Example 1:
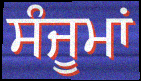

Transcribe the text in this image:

ਸੰਜੂਮਾਂ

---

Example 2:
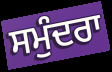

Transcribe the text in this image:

ਸਮੁੰਦਰਾ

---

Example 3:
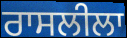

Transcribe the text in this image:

ਰਾਸਲੀਲਾ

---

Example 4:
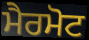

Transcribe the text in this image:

ਮੈਰਮੋਟ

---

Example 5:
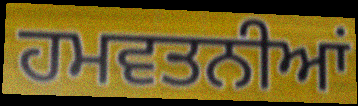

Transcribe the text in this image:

ਹਮਵਤਨੀਆਂ